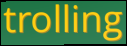
trolling